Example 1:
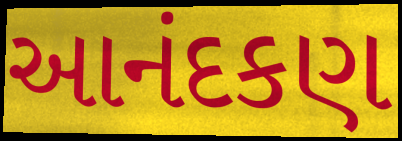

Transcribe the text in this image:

આનંદકણ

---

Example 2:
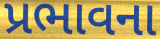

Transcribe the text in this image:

પ્રભાવના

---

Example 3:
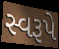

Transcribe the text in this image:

સ્વરૂપે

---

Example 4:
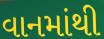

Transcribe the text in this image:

વાનમાંથી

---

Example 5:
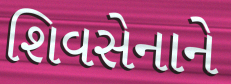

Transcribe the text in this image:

શિવસેનાને